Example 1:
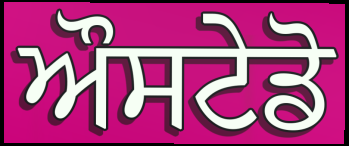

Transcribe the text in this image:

ਔਸਟੇਡੋ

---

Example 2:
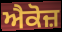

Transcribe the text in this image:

ਐਕੋਜ਼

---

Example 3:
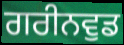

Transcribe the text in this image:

ਗਰੀਨਵੁਡ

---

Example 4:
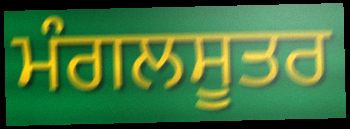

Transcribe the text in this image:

ਮੰਗਲਸੂਤਰ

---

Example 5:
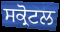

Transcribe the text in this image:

ਸਕ੍ਰੋਟਲ